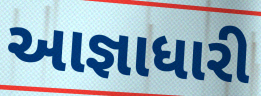
આજ્ઞાધારી